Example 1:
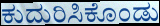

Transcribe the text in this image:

ಕುದುರಿಸಿಕೊಂಡು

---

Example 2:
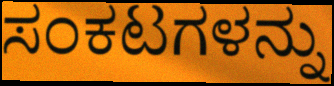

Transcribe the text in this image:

ಸಂಕಟಗಳನ್ನು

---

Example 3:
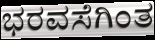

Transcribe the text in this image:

ಭರವಸೆಗಿಂತ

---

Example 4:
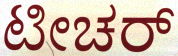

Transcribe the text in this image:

ಟೀಚರ್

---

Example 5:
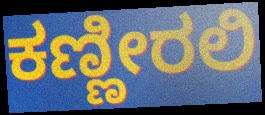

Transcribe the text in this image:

ಕಣ್ಣೀರಲಿ